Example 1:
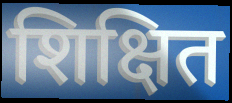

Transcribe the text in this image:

शिक्षित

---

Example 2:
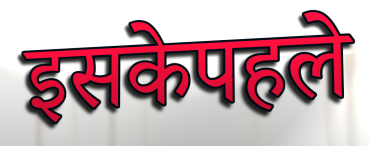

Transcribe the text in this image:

इसकेपहले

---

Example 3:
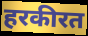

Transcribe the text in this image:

हरकीरत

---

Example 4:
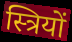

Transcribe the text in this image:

स्त्रियों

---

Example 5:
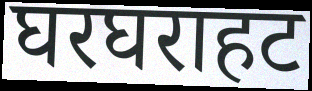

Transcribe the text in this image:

घरघराहट